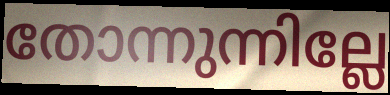
തോന്നുന്നില്ലേ